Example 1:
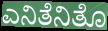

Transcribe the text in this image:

ಎನಿತೆನಿತೊ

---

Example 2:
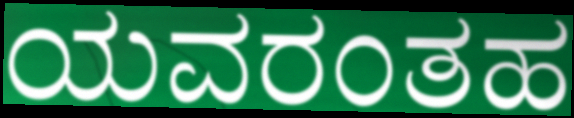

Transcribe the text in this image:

ಯವರಂತಹ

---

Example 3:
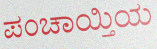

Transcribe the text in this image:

ಪಂಚಾಯ್ತಿಯ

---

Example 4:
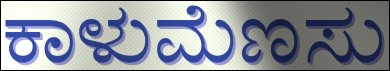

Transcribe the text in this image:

ಕಾಳುಮೆಣಸು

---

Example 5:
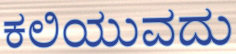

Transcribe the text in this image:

ಕಲಿಯುವದು